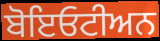
ਬੋਇਓਟੀਅਨ